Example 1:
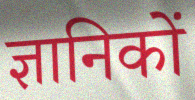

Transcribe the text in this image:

ज्ञानिकों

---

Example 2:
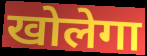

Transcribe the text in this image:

खोलेगा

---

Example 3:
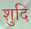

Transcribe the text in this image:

शुदि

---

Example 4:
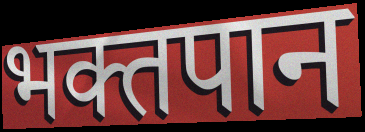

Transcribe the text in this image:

भक्तपान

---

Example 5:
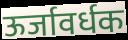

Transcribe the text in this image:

ऊर्जावर्धक